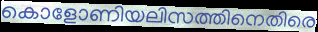
കൊളോണിയലിസത്തിനെതിരെ